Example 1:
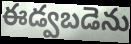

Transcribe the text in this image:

ఈడ్వబడెను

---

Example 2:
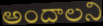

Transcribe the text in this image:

అందాలని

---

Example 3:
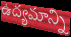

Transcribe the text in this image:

ఉద్యమాన్ని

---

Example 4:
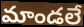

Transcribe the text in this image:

మాండలే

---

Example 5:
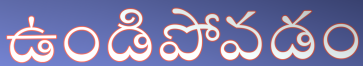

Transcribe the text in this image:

ఉండిపోవడం